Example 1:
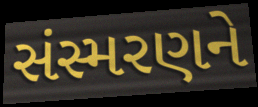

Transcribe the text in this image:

સંસ્મરણને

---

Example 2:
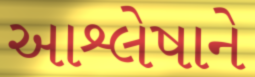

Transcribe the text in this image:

આશ્લેષાને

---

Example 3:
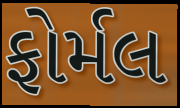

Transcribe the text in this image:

ફોર્મલ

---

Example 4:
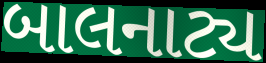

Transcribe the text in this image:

બાલનાટ્ય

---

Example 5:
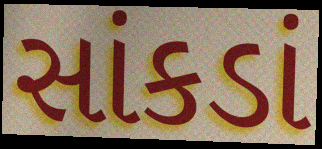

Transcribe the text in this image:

સાંકડાં